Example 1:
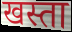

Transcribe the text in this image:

खस्ता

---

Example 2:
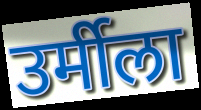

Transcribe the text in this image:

उर्मीला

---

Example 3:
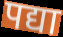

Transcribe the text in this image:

पद्या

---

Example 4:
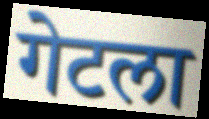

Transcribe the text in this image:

गेटला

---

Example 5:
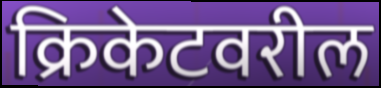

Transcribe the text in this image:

क्रिकेटवरील